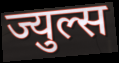
ज्युल्स